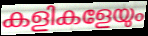
കളികളേയും